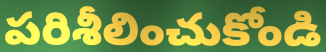
పరిశీలించుకోండి